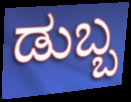
ಡುಬ್ಬ